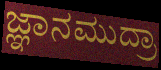
ಜ್ಞಾನಮುದ್ರಾ